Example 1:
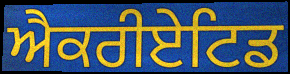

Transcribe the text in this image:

ਐਕਰੀਏਟਿਡ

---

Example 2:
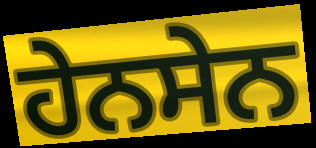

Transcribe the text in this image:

ਹੇਨਸੇਨ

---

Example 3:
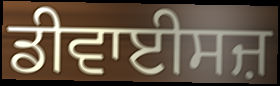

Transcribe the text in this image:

ਡੀਵਾਈਸਜ਼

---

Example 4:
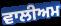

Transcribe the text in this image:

ਵਾਲੀਅਮ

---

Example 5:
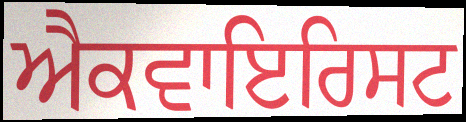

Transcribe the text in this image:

ਐਕਵਾਇਰਿਸਟ